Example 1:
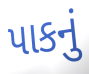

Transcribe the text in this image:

પાકનું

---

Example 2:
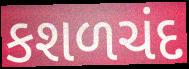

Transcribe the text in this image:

કશળચંદ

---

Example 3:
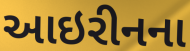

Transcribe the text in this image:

આઇરીનના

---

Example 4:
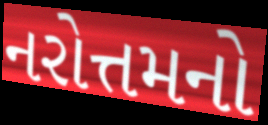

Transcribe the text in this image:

નરોત્તમનો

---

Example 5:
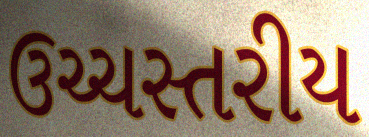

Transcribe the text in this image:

ઉચ્ચસ્તરીય